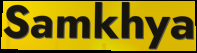
Samkhya